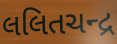
લલિતચન્દ્ર